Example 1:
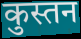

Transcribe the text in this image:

कुस्तन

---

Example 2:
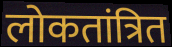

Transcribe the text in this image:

लोकतांत्रित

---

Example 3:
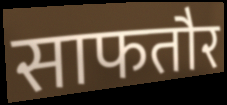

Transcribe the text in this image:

साफतौर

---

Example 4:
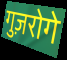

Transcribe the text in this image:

गुज़रोगे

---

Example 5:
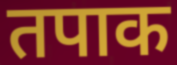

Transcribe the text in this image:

तपाक